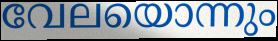
വേലയൊന്നും